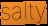
salty